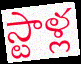
స్టాళ్ల